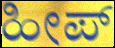
ಹೀಪ್